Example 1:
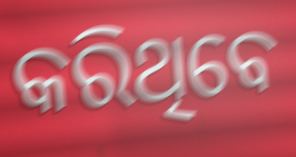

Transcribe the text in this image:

କରିଥିବେ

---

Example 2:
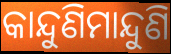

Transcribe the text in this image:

କାନ୍ଦୁଣିମାନ୍ଦୁଣି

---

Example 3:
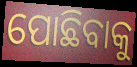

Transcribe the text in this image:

ପୋଛିବାକୁ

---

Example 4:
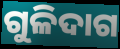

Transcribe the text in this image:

ଗୁଳିଦାଗ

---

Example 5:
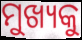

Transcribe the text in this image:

ମୁଖ୍ୟକୁ